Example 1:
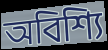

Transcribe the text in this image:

অবিশ্যি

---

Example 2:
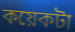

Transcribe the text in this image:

কয়েকটা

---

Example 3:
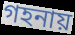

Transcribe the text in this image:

গহনায়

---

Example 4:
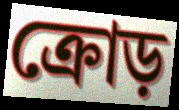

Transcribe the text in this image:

ক্রোড়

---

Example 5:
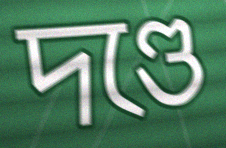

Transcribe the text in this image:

দণ্ডে